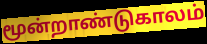
மூன்றாண்டுகாலம்